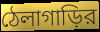
ঠেলাগাড়ির